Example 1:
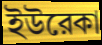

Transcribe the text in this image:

ইউরেকা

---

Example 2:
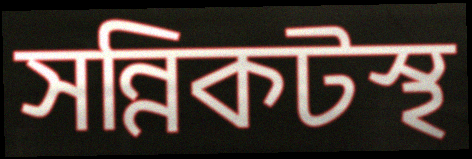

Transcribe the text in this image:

সন্নিকটস্থ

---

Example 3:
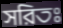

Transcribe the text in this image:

সরিতঃ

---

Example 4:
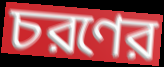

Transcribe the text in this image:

চরণের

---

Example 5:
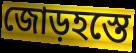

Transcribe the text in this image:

জোড়হস্তে